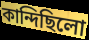
কান্দিছিলো